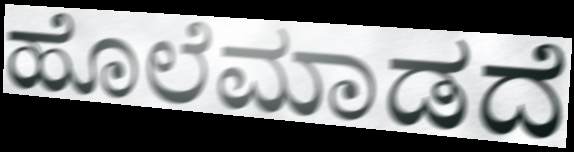
ಹೊಲೆಮಾಡದೆ